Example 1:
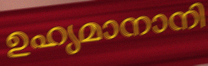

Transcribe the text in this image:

ഉഹ്യമാനാനി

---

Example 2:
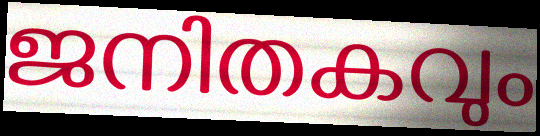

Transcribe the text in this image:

ജനിതകവും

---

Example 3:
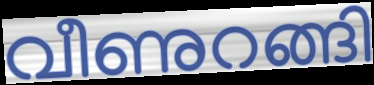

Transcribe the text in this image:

വീണുറങ്ങി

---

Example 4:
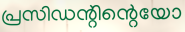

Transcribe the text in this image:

പ്രസിഡന്റിന്റെയോ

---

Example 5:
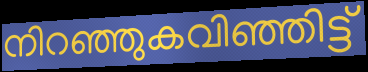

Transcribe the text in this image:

നിറഞ്ഞുകവിഞ്ഞിട്ട്